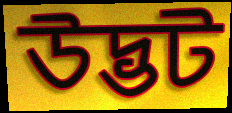
উদ্ভট